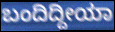
ಬಂದಿದ್ದೀಯಾ